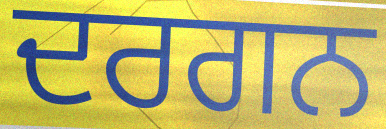
ਦਰਗਨ